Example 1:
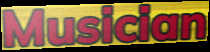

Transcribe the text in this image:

Musician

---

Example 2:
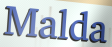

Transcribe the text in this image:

Malda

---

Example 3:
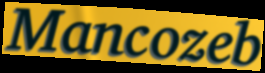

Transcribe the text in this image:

Mancozeb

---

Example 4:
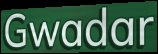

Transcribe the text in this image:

Gwadar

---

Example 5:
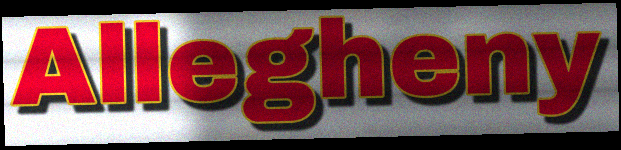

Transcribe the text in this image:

Allegheny